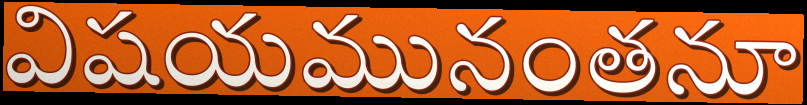
విషయమునంతనూ